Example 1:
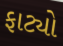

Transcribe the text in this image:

ફાટ્યો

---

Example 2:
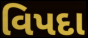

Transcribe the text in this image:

વિપદા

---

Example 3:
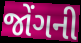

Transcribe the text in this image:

જોંગની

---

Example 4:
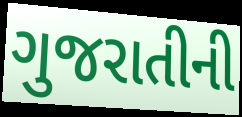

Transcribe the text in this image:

ગુજરાતીની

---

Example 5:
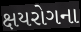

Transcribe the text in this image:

ક્ષયરોગના